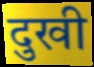
दुखी